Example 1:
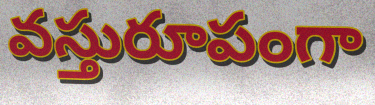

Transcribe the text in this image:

వస్తురూపంగా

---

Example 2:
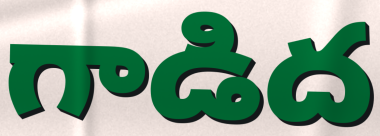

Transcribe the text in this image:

గాడిద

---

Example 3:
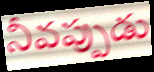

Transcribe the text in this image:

నీవప్పుడు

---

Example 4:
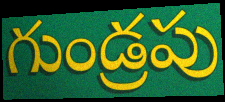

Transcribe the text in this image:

గుండ్రపు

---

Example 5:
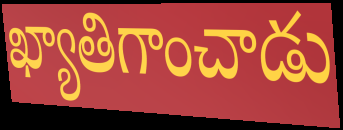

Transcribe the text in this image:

ఖ్యాతిగాంచాడు